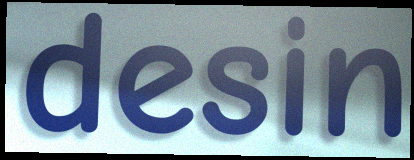
desin